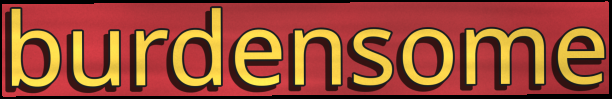
burdensome